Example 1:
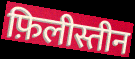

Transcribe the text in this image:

फ़िलीस्तीन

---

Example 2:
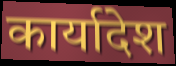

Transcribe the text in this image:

कार्यादेश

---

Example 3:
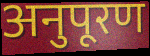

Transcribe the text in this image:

अनुपूरण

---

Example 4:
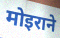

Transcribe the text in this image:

मोइराने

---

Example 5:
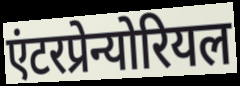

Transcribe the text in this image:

एंटरप्रेन्योरियल